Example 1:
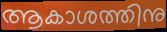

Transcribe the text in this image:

ആകാശത്തിനു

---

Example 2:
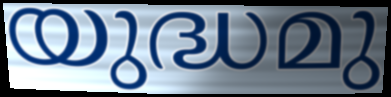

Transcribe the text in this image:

യുദ്ധമു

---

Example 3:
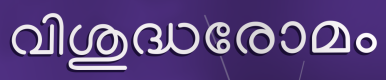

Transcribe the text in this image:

വിശുദ്ധരോമം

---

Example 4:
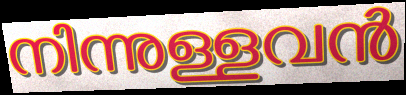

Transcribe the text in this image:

നിന്നുള്ളവൻ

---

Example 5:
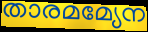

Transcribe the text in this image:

താരമമ്യേന